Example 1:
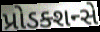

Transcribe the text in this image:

પ્રોડક્શન્સે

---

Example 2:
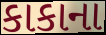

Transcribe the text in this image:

કાકાના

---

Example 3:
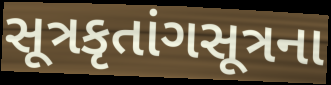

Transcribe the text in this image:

સૂત્રકૃતાંગસૂત્રના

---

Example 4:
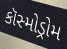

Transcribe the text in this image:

કૉસ્મોડ્રોમ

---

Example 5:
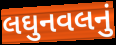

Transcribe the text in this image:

લઘુનવલનું